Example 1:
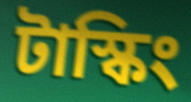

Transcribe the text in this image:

টাস্কিং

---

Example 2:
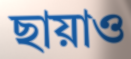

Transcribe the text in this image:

ছায়াও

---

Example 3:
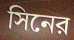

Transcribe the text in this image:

সিনের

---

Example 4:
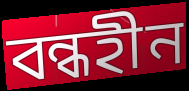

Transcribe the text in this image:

বন্ধহীন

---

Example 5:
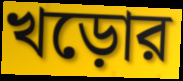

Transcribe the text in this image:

খড়োর